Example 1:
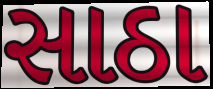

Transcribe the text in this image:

સાઠા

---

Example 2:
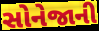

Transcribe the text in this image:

સોનેજાની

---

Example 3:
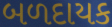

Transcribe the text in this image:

બળદાયક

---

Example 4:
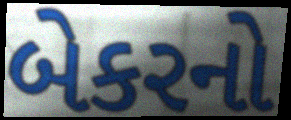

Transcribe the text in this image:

બેકરનો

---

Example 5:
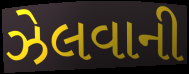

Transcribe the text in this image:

ઝેલવાની